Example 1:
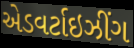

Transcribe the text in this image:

એડવર્ટાઇઝીંગ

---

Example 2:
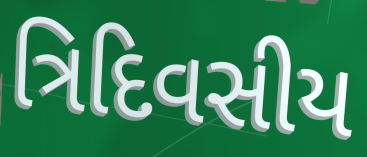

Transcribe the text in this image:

ત્રિદિવસીય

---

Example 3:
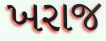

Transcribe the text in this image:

ખરાજ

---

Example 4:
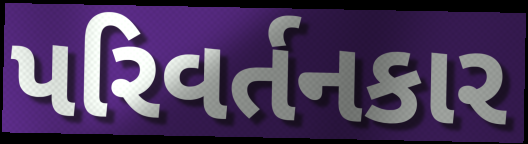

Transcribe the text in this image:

પરિવર્તનકાર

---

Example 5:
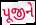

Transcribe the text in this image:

પૂજીને